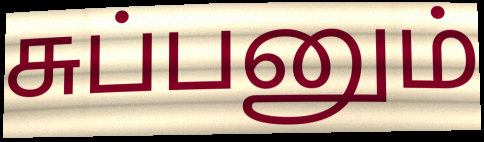
சுப்பனும்